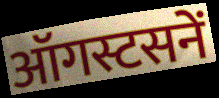
ऑगस्टसनें